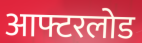
आफ्टरलोड